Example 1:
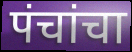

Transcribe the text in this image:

पंचांचा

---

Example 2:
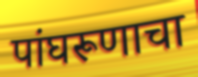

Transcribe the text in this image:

पांघरूणाचा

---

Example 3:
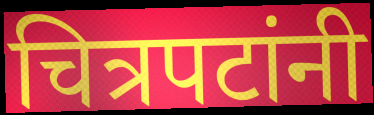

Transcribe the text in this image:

चित्रपटांनी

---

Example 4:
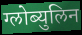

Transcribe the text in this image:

ग्लोब्युलिन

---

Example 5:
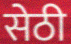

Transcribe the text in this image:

सेठी